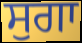
ਸੁਗਾ